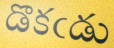
డొకఁడు